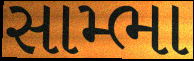
સામ્ભા